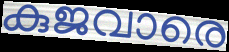
കുജവാരെ